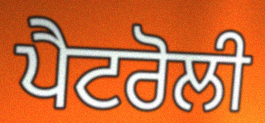
ਪੈਟਰੋਲੀ